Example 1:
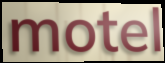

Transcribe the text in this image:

motel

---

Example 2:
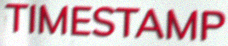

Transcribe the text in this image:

TIMESTAMP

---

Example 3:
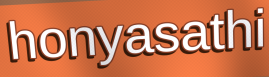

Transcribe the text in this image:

honyasathi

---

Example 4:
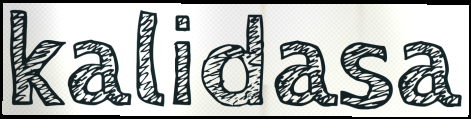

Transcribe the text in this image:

kalidasa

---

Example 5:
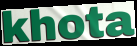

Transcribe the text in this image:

khota